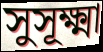
সুসূক্ষ্মা